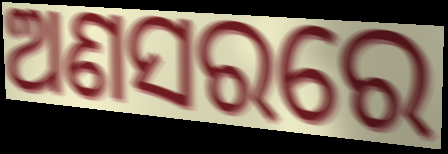
ଅଣସରରେ